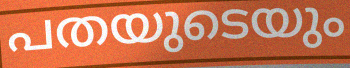
പതയുടെയും